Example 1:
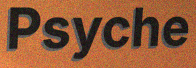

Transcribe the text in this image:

Psyche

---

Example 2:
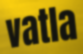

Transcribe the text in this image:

vatla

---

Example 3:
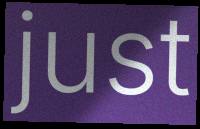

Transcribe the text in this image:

just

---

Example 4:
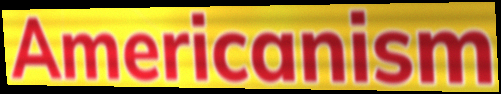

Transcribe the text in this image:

Americanism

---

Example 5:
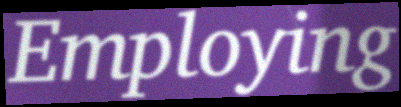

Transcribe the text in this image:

Employing